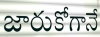
జారుకోగానే